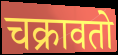
चक्रावतो